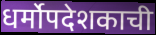
धर्मोपदेशकाची